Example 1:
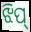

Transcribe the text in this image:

ଝିପ୍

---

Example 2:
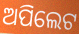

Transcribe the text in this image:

ଅପିଲେଟ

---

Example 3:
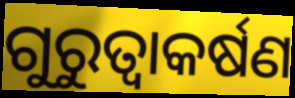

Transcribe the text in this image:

ଗୁରୁତ୍ଵାକର୍ଷଣ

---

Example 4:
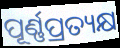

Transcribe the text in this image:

ପୂର୍ଣ୍ଣପ୍ରତ୍ୟକ୍ଷ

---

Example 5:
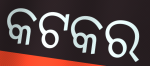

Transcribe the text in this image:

କଟକର